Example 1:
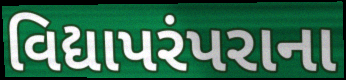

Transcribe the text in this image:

વિદ્યાપરંપરાના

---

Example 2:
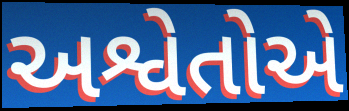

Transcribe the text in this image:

અશ્વેતોએ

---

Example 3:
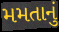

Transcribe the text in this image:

મમતાનું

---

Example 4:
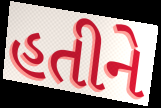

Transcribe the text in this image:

હતીને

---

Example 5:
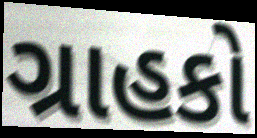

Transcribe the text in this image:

ગ્રાહકો